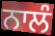
ਨਾਲੰ